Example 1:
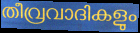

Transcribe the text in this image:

തീവ്രവാദികളും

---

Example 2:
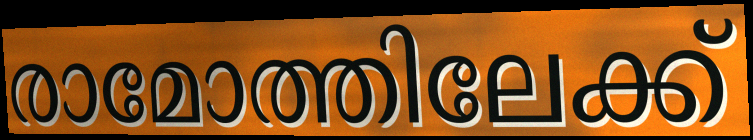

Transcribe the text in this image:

രാമോത്തിലേക്ക്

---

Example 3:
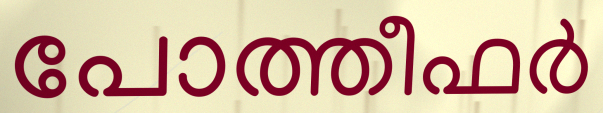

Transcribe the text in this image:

പോത്തീഫർ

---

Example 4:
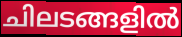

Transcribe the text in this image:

ചിലടങ്ങളിൽ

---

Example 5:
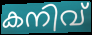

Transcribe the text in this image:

കനിവ്